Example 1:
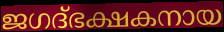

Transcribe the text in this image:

ജഗദ്ഭക്ഷകനായ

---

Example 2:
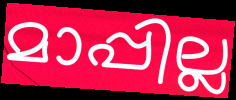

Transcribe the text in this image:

മാപ്പില്ല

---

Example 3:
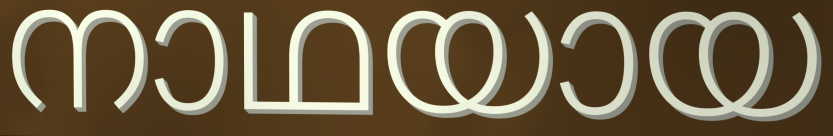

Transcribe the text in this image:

നാഥയായ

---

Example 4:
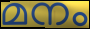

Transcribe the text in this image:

മനം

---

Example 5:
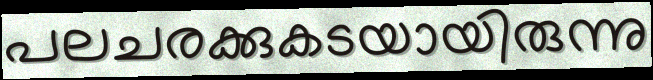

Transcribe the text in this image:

പലചരക്കുകടയായിരുന്നു